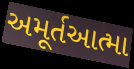
અમૂર્તઆત્મા